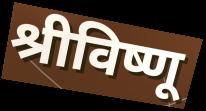
श्रीविष्णू